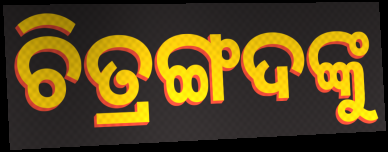
ଚିତ୍ରଙ୍ଗଦଙ୍କୁ